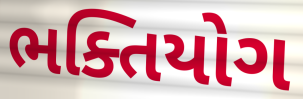
ભક્તિયોગ